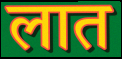
लात